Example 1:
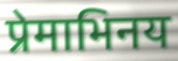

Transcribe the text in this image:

प्रेमाभिनय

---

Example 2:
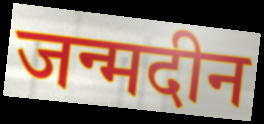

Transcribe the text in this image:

जन्मदीन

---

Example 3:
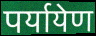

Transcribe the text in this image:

पर्यायेण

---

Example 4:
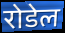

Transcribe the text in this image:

रोडेल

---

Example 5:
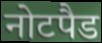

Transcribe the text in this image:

नोटपैड